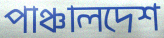
পাঞ্চালদেশ